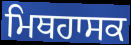
ਮਿਥਹਾਸਕ